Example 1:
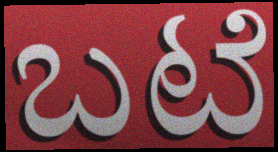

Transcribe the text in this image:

ಬಟೆ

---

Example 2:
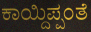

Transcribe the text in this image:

ಕಾಯ್ದಿಪ್ಪಂತೆ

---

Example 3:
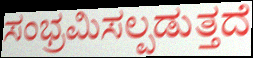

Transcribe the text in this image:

ಸಂಭ್ರಮಿಸಲ್ಪಡುತ್ತದೆ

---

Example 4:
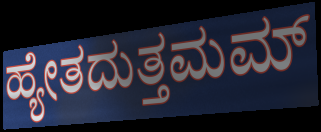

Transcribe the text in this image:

ಹ್ಯೇತದುತ್ತಮಮ್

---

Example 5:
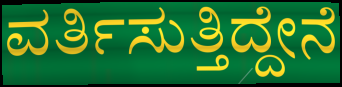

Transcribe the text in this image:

ವರ್ತಿಸುತ್ತಿದ್ದೇನೆ